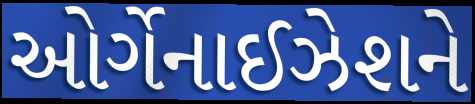
ઓર્ગેનાઈઝેશને